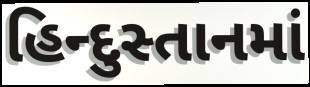
હિન્દુસ્તાનમાં